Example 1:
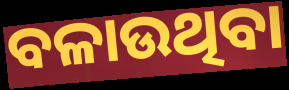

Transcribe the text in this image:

ବଳାଉଥିବା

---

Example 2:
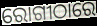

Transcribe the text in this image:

ରୋଗୀଠାରେ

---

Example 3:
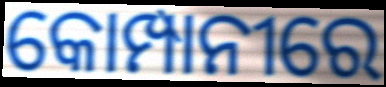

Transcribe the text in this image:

କୋମ୍ପାନୀରେ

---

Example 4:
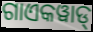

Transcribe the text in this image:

ଗାଏକୱାଡ୍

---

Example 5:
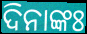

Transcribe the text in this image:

ଦିନାଙ୍କଃ